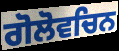
ਗੋਲੋਵਚਿਨ